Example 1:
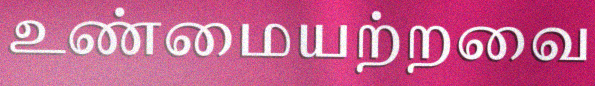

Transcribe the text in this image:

உண்மையற்றவை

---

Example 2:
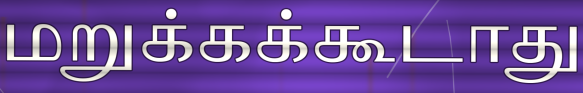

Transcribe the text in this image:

மறுக்கக்கூடாது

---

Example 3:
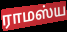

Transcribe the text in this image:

ராமஸ்ய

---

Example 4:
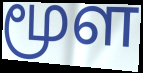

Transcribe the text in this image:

மூள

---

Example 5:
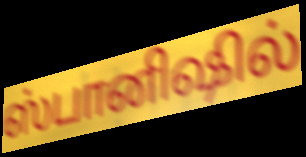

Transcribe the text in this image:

ஸ்பானிஷில்